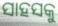
ସାହସକୁ